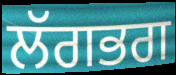
ਲੱਗਭਗ